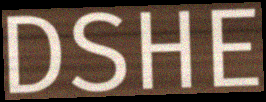
DSHE